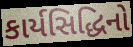
કાર્યસિદ્ધિનો